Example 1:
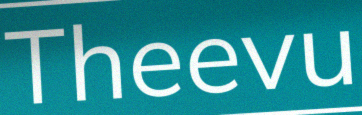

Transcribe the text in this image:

Theevu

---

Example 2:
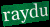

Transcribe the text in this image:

raydu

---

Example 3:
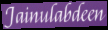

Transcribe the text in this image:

Jainulabdeen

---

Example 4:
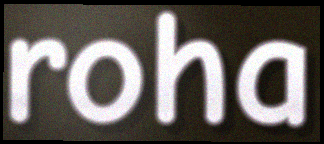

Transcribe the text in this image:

roha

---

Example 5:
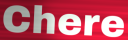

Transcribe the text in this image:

Chere